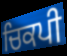
ਚਿਕਪੀ